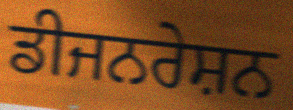
ਡੀਜਨਰੇਸ਼ਨ